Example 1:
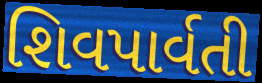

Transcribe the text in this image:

શિવપાર્વતી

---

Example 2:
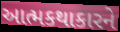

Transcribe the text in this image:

આત્મકથાકારને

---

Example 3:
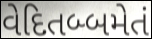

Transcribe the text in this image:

વેદિતબ્બમેતં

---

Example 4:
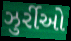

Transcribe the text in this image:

ઝુર્રીઓ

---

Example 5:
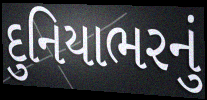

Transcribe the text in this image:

દુનિયાભરનું